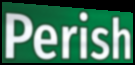
Perish